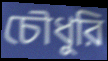
চৌধুরি